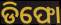
ଡିଫୋ